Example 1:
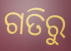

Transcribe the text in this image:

ଗତିରୁ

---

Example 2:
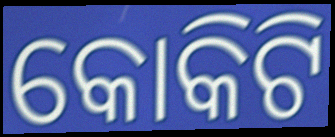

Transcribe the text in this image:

କୋକିଟି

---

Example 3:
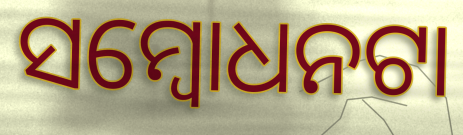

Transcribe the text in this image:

ସମ୍ବୋଧନଟା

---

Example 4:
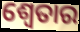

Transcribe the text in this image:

ଶ୍ୱେତାର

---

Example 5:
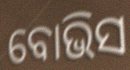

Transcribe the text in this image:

ବୋଭିସ